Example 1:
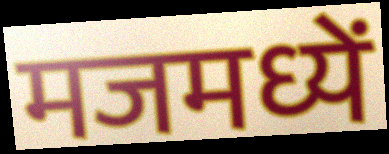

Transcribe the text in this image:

मजमध्यें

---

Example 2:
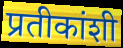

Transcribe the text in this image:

प्रतीकांशी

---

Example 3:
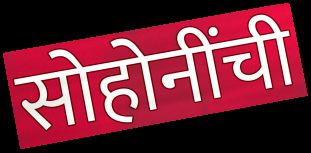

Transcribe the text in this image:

सोहोनींची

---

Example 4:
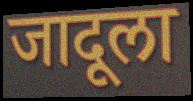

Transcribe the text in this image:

जादूला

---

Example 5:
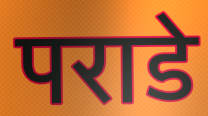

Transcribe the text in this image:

पराडे